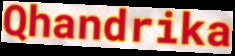
Qhandrika